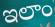
ఇలాం